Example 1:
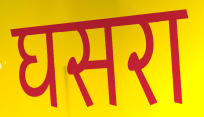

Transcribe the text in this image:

घसरा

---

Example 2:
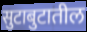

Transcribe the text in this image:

सुटाबुटातील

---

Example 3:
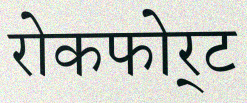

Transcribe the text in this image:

रोकफोर्ट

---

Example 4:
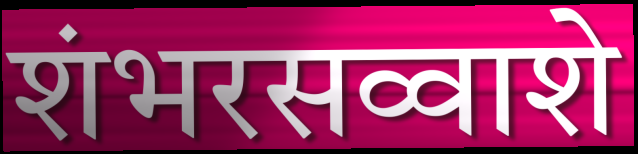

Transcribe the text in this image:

शंभरसव्वाशे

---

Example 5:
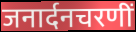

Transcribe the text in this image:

जनार्दनचरणीं